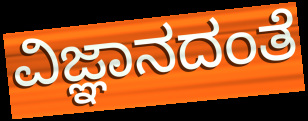
ವಿಜ್ಞಾನದಂತೆ